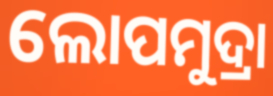
ଲୋପମୁଦ୍ରା